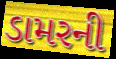
ડામરની